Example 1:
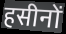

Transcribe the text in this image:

हसीनों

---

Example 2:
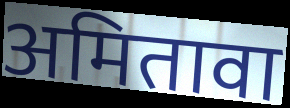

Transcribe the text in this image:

अमितावा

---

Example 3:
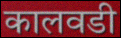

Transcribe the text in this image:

कालवडी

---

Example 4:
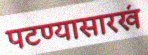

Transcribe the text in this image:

पटण्यासारखं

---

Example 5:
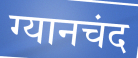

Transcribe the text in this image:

ग्यानचंद